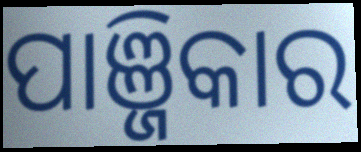
ପାଞ୍ଜିକାର